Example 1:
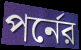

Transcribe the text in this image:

পর্নের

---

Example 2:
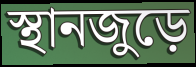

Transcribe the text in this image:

স্থানজুড়ে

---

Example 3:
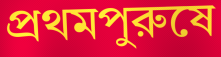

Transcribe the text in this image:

প্রথমপুরুষে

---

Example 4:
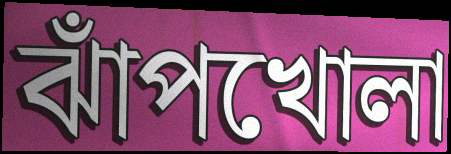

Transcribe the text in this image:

ঝাঁপখোলা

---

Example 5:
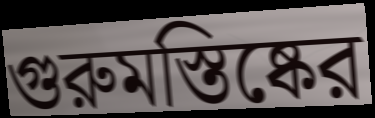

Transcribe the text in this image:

গুরুমস্তিষ্কের